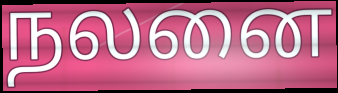
நலனை